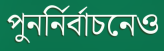
পুনর্নির্বাচনেও